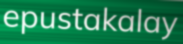
epustakalay